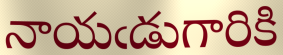
నాయఁడుగారికి